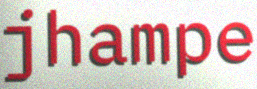
jhampe